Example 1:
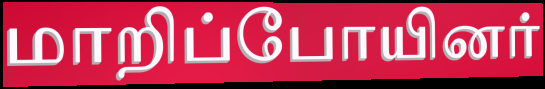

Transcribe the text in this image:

மாறிப்போயினர்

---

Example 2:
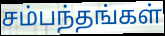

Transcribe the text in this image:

சம்பந்தங்கள்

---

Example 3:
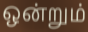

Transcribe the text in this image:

ஒன்றும்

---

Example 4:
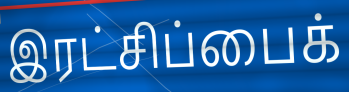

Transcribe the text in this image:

இரட்சிப்பைக்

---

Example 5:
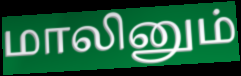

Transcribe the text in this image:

மாலினும்